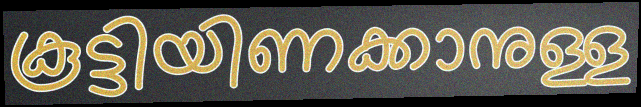
കൂട്ടിയിണക്കാനുള്ള